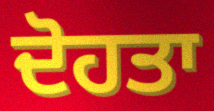
ਦੋਹਤਾ